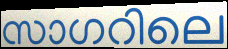
സാഗറിലെ